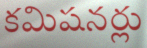
కమిషనర్లు